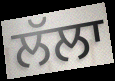
ਲੱਲਾ